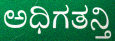
ಅಧಿಗತನ್ತಿ